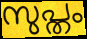
സുപ്തം